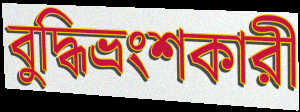
বুদ্ধিভ্রংশকারী